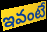
ఇవంటే